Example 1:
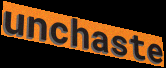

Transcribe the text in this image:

unchaste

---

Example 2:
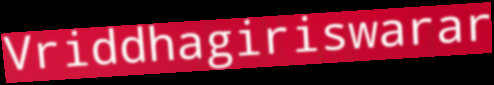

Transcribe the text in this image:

Vriddhagiriswarar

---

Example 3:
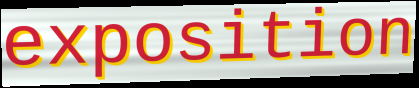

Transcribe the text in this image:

exposition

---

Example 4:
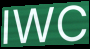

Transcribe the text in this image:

IWC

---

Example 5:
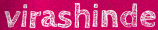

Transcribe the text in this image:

virashinde